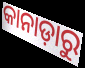
କାନାଡ଼ାରୁ